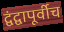
द्वंद्वापूर्वीच